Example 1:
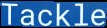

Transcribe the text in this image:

Tackle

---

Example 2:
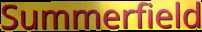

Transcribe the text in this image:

Summerfield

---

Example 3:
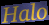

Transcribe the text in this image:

Halo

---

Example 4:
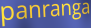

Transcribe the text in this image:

panranga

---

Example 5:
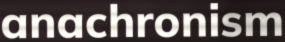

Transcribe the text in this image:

anachronism